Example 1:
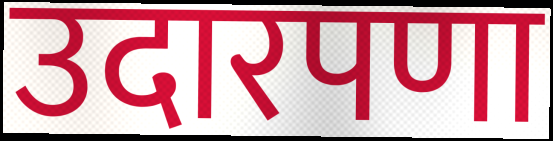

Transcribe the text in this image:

उदारपणा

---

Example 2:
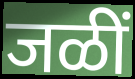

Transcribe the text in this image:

जळीं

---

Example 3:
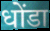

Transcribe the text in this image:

धोंडा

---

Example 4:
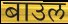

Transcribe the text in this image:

बाउल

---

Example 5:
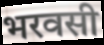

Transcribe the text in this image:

भरवसी